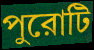
পুরোটি